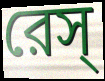
রেস্